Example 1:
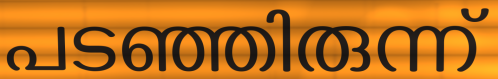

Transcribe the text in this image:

പടഞ്ഞിരുന്ന്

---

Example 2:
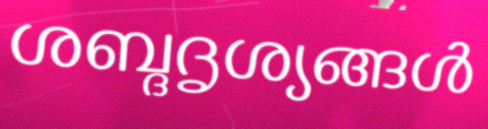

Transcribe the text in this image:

ശബ്ദദൃശ്യങ്ങൾ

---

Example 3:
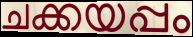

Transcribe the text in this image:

ചക്കയപ്പം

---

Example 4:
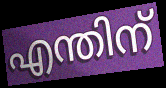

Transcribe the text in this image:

എന്തിന്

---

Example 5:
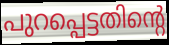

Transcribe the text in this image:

പുറപ്പെട്ടതിന്റെ